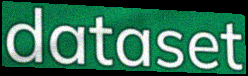
dataset